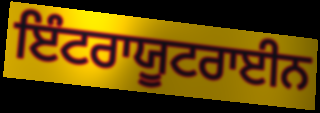
ਇੰਟਰਾਯੂਟਰਾਈਨ